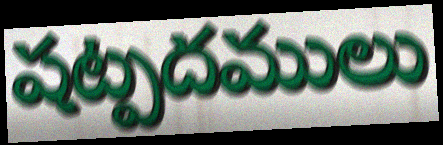
షట్పదములు